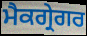
ਮੈਕਗ੍ਰੇਗਰ